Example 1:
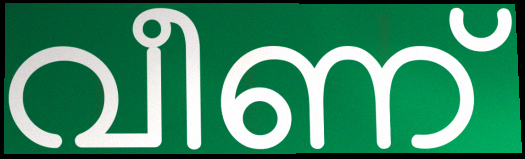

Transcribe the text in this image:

വീണ്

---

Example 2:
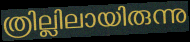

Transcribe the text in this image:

ത്രില്ലിലായിരുന്നു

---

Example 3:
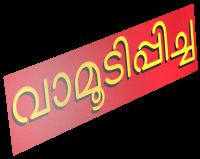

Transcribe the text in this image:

വാമൂടിപ്പിച്ച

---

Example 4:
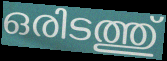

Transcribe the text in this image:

ഒരിടത്തു്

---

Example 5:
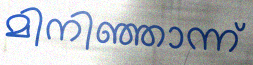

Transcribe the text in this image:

മിനിഞ്ഞാന്ന്